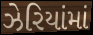
ઝેરિયાંમાં